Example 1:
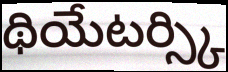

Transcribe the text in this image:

థియేటర్స్కి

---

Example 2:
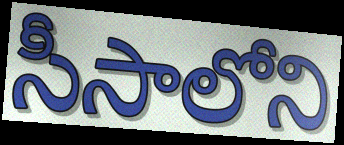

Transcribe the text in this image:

సీసాలోని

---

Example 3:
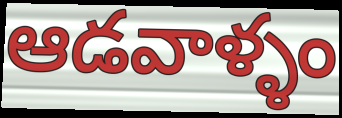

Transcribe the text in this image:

ఆడవాళ్ళం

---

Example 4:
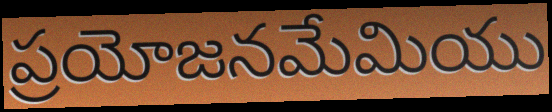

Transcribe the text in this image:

ప్రయోజనమేమియు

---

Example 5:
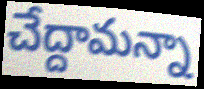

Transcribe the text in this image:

చేద్దామన్నా